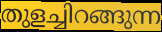
തുളച്ചിറങ്ങുന്ന